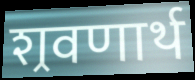
श्रवणार्थ